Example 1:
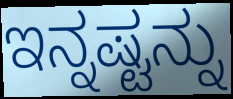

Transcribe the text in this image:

ಇನ್ನಷ್ಟನ್ನು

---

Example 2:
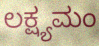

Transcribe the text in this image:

ಲಕ್ಷ್ಯಮಂ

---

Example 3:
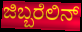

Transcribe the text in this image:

ಜಿಬ್ಬರೆಲಿನ್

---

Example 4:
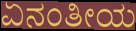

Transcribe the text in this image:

ಏನಂತೀಯ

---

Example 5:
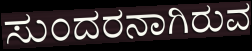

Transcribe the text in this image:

ಸುಂದರನಾಗಿರುವ